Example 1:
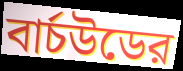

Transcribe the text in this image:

বার্চউডের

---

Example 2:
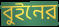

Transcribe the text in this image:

বুইনের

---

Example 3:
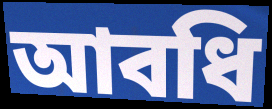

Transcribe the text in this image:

আবধি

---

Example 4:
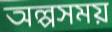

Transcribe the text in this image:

অল্পসময়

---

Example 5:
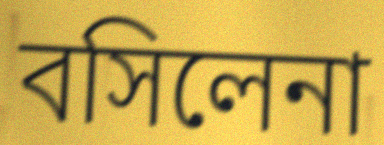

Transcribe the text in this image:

বসিলেনা